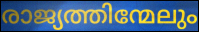
രാജ്യത്തിന്മേലും